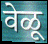
वेळू